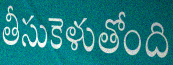
తీసుకెళుతోంది